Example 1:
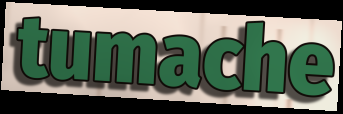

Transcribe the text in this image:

tumache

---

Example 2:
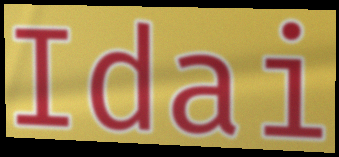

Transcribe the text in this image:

Idai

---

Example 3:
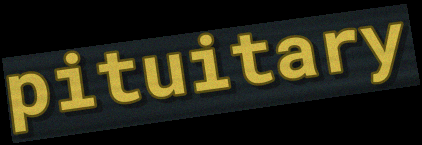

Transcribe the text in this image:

pituitary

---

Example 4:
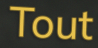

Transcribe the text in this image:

Tout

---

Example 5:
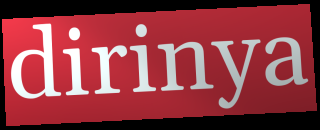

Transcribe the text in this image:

dirinya